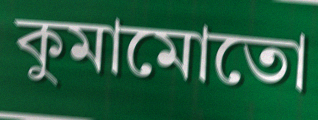
কুমামোতো